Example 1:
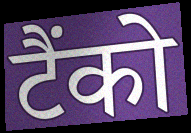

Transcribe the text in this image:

टैंको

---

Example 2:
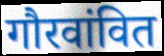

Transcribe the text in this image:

गौरवांवित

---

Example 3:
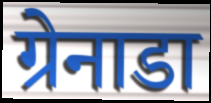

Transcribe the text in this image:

ग्रेनाडा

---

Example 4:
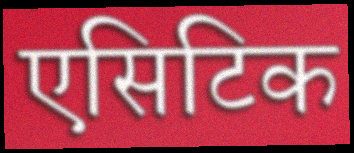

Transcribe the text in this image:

एसिटिक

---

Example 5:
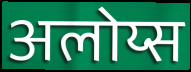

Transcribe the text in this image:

अलोय्स